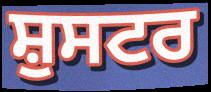
ਸ਼ੁਸਟਰ